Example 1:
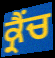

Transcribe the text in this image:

ਕ੍ਰੈਂਚ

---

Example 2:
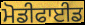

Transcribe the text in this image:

ਮੋਡੀਫਾਈਡ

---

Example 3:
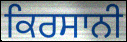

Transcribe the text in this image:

ਕਿਰਸਾਨੀ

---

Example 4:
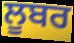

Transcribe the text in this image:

ਲੂਬਰ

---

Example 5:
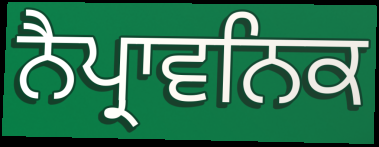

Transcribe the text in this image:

ਨੈਪ੍ਰਾਵਨਿਕ